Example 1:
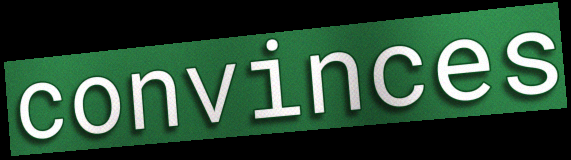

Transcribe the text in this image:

convinces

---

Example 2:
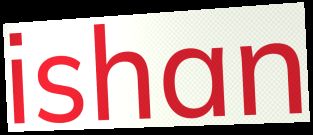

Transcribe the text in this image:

ishan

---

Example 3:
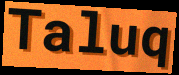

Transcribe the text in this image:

Taluq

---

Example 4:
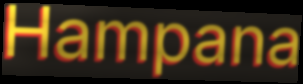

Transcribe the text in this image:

Hampana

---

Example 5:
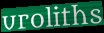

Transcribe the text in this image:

uroliths